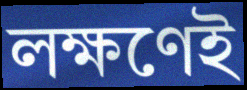
লক্ষণেই